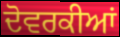
ਦੋਵਰਕੀਆਂ